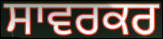
ਸਾਵਰਕਰ